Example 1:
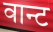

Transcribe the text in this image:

वान्ट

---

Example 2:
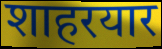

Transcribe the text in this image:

शाहरयार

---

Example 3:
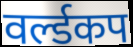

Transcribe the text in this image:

वर्ल्डकप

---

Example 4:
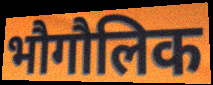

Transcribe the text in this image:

भौगौलिक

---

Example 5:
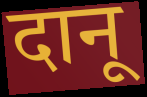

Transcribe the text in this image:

दानू